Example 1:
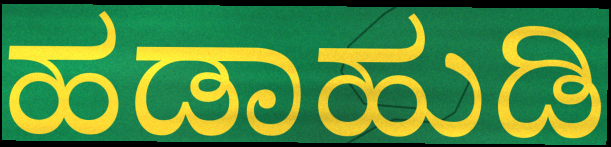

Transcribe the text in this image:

ಹಡಾಹುಡಿ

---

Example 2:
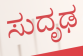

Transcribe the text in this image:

ಸುದೃಢ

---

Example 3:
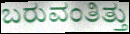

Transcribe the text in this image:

ಬರುವಂತಿತ್ತು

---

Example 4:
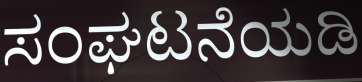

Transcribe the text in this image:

ಸಂಘಟನೆಯಡಿ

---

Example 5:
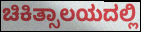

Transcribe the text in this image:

ಚಿಕಿತ್ಸಾಲಯದಲ್ಲಿ